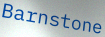
Barnstone